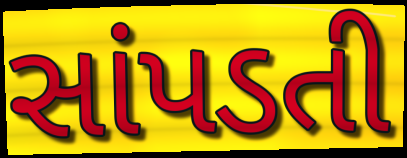
સાંપડતી